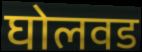
घोलवड